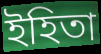
ইহিতা